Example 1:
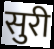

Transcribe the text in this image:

सुरी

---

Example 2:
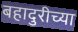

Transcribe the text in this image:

बहादुरीच्या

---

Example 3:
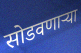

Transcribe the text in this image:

सोडवणाऱ्या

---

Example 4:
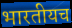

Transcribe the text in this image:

भारतीयच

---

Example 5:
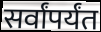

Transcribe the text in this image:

सर्वांपर्यंत